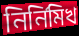
নির্নিমিখ